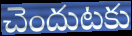
చెందుటకు